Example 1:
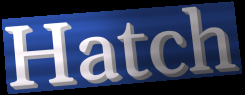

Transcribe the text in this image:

Hatch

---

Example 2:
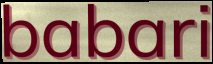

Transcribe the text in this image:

babari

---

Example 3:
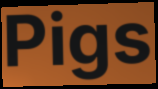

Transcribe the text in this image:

Pigs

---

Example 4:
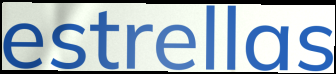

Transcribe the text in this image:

estrellas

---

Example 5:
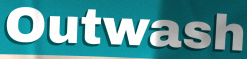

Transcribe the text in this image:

Outwash